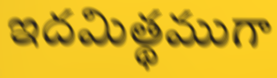
ఇదమిత్థముగా